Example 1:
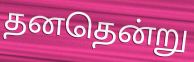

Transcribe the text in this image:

தனதென்று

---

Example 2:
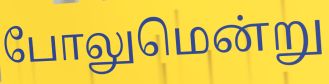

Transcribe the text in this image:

போலுமென்று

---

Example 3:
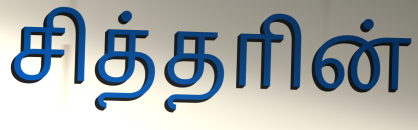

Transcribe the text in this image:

சித்தரின்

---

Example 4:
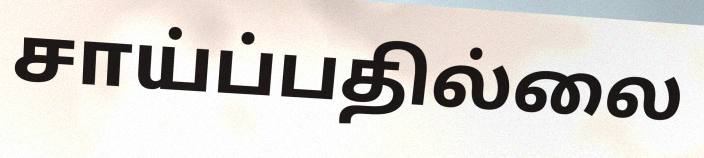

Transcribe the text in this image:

சாய்ப்பதில்லை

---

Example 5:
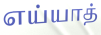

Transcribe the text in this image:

எய்யாத்